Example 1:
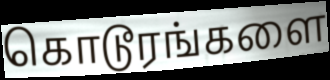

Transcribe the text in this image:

கொடூரங்களை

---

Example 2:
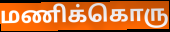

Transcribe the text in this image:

மணிக்கொரு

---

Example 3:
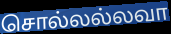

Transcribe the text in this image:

சொல்லல்லவா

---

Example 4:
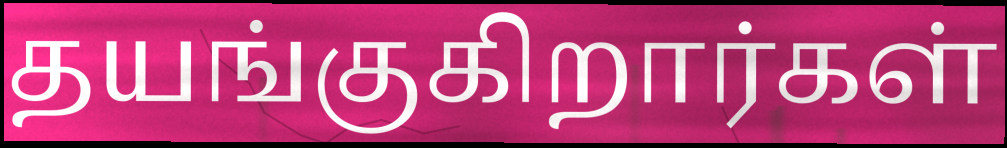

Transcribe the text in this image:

தயங்குகிறார்கள்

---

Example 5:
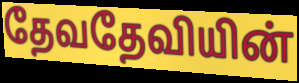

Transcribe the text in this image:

தேவதேவியின்